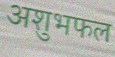
अशुभफल